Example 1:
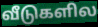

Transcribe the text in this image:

வீடுகளில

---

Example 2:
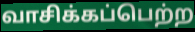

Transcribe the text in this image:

வாசிக்கப்பெற்ற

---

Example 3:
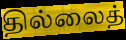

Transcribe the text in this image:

தில்லைத்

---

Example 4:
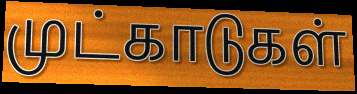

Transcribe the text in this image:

முட்காடுகள்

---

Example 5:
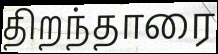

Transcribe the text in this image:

திறந்தாரை